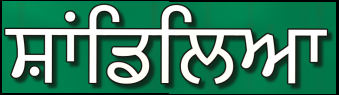
ਸ਼ਾਂਡਿਲਿਆ